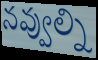
నవ్వుల్ని